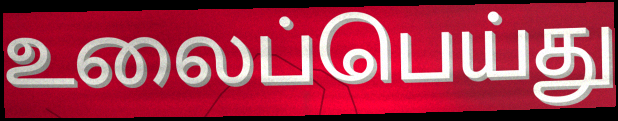
உலைப்பெய்து